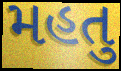
મહતુ